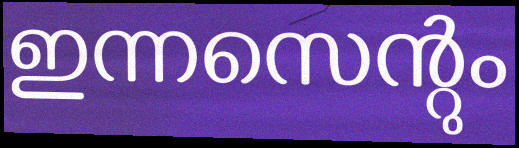
ഇന്നസെന്റും